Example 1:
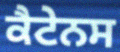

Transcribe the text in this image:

ਕੈਟੇਨਸ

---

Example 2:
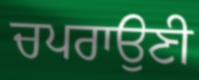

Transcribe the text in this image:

ਚਪਰਾਉਣੀ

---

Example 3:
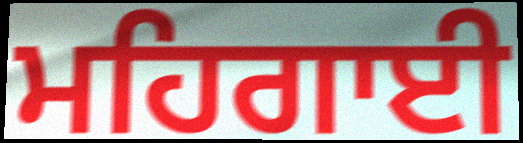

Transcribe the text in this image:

ਮਹਿਗਾਈ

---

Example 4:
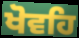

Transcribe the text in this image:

ਖੋਵਹਿ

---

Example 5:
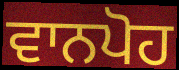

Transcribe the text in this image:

ਵਾਨਪੋਹ